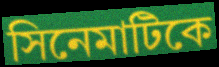
সিনেমাটিকে